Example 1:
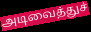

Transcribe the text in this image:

அடிவைத்துச்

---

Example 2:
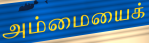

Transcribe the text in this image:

அம்மையைக்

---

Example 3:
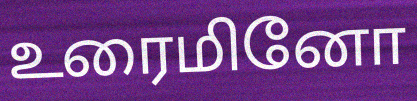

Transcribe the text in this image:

உரைமினோ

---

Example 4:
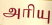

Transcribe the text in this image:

அரியு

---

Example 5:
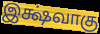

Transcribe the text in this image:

இக்ஷ்வாகு